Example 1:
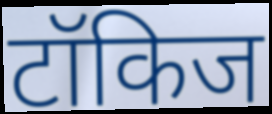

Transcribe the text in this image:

टॉकिज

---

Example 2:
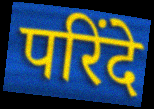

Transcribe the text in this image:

परिंदे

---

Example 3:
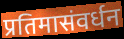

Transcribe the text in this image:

प्रतिमासंवर्धन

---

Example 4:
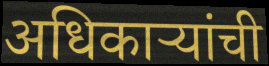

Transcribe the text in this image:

अधिकाऱ्यांची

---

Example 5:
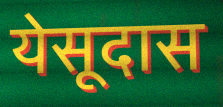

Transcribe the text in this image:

येसूदास